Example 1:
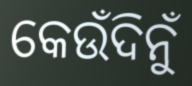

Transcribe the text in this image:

କେଉଁଦିନୁଁ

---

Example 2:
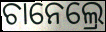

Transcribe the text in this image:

ଚାନେଲ୍ରେ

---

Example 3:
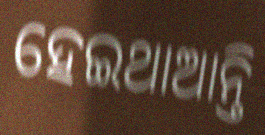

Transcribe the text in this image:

ହେଇଥାଆନ୍ତି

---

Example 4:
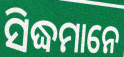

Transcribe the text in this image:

ସିଦ୍ଧମାନେ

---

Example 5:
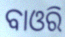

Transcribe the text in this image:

ବାଓରି